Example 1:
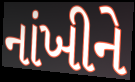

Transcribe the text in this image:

નાંખીને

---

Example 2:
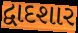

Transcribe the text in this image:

દ્વાદશાર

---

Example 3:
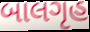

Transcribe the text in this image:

બાલગૃહ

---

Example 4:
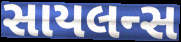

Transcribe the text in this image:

સાયલન્સ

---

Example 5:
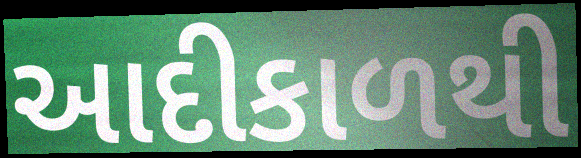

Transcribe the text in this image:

આદીકાળથી